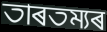
তাৰতম্যৰ